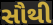
સૌથી